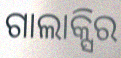
ଗାଲାକ୍ସିର